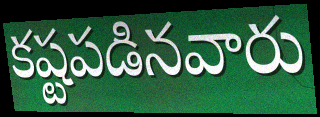
కష్టపడినవారు